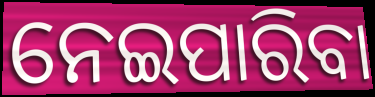
ନେଇପାରିବା